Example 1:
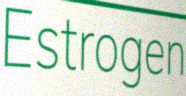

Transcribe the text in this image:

Estrogen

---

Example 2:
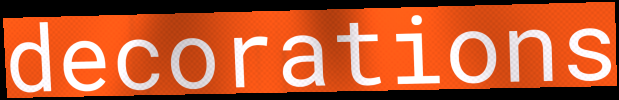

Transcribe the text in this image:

decorations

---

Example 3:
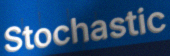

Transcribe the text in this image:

Stochastic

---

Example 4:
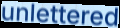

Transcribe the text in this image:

unlettered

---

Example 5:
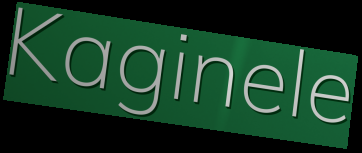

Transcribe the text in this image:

Kaginele